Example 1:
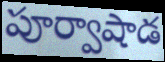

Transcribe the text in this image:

పూర్వాషాడ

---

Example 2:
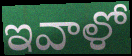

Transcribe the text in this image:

ఇవాళో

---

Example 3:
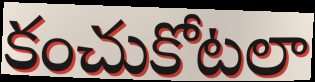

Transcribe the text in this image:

కంచుకోటలా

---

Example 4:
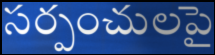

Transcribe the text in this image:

సర్పంచులపై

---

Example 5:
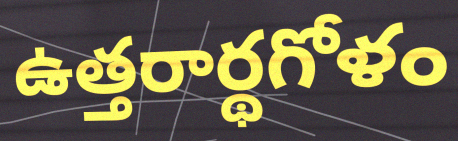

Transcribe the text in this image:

ఉత్తరార్థగోళం